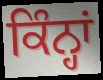
ਕਿੰਨ੍ਹਾਂ